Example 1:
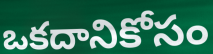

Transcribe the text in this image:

ఒకదానికోసం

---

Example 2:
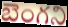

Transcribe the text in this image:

బెంగని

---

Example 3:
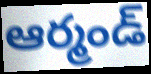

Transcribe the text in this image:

ఆర్మండ్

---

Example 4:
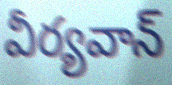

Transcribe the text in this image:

వీర్యవాన్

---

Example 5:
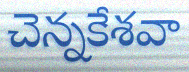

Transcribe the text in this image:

చెన్నకేశవా